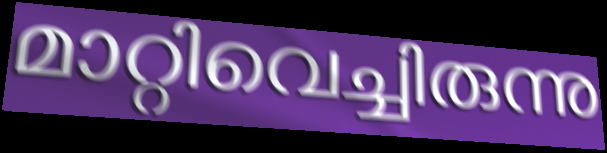
മാറ്റിവെച്ചിരുന്നു